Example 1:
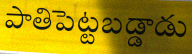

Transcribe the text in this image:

పాతిపెట్టబడ్డాడు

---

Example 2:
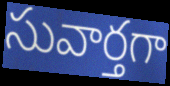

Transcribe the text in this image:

సువార్తగా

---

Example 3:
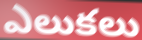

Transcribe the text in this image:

ఎలుకలు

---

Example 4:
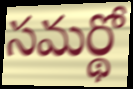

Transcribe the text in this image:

సమర్థో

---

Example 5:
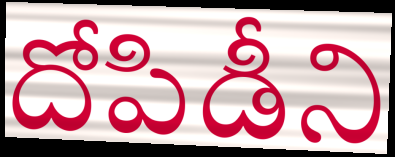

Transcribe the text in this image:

దోపిడీని